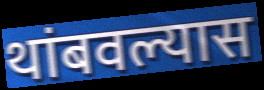
थांबवल्यास